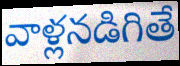
వాళ్లనడిగితే